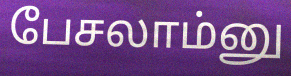
பேசலாம்னு